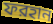
ফরহান